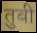
तुबी